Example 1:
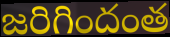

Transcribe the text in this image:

జరిగిందంత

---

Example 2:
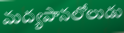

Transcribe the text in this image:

మద్యపానలోలుడు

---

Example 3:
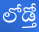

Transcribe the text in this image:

లోడ్తో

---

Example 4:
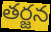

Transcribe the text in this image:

తర్జన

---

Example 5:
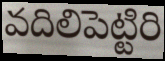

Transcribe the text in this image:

వదిలిపెట్టిరి